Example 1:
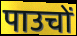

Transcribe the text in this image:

पाउचों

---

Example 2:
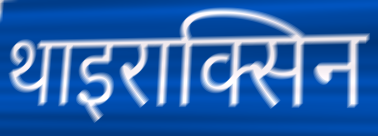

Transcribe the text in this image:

थाइराक्सिन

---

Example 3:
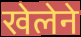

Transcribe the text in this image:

खेलेने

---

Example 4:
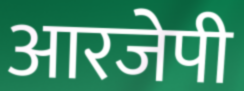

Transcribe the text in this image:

आरजेपी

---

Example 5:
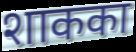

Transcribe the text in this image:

शाकका